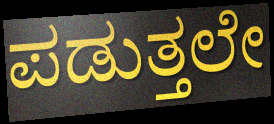
ಪಡುತ್ತಲೇ